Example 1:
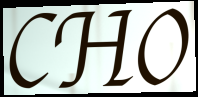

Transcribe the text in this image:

CHO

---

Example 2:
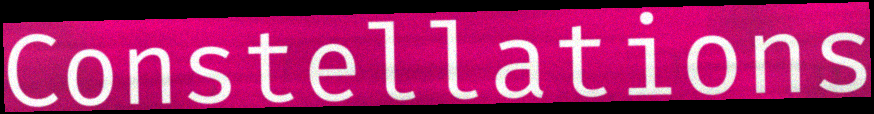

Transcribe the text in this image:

Constellations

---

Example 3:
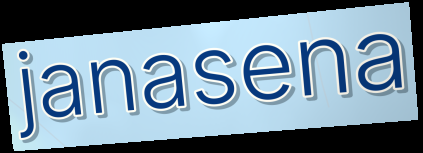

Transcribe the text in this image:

janasena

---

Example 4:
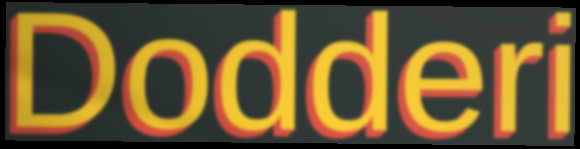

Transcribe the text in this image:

Dodderi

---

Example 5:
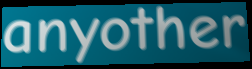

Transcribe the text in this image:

anyother